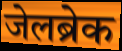
जेलब्रेक